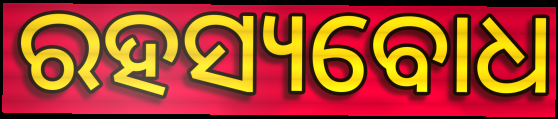
ରହସ୍ୟବୋଧ